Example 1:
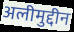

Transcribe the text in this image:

अलीमुद्दीन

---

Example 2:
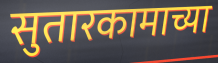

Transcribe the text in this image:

सुतारकामाच्या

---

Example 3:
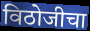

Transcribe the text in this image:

विठोजीचा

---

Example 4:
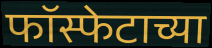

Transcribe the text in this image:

फॉस्फेटाच्या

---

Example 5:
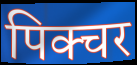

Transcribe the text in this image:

पिक्चर